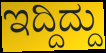
ಇದ್ದಿದ್ದು